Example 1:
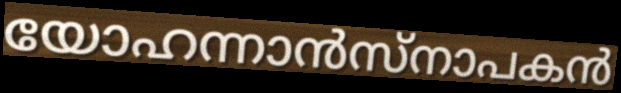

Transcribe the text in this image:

യോഹന്നാൻസ്നാപകൻ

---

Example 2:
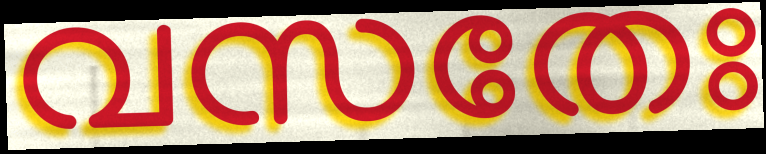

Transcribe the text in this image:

വസതേഃ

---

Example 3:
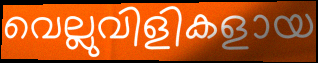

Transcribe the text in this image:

വെല്ലുവിളികളായ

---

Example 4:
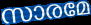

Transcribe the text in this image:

സാരമേ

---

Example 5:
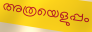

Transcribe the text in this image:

അത്രയെളുപ്പം